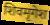
शिवमृगेश